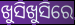
ଖୁସିଖୁସିରେ